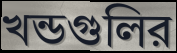
খন্ডগুলির